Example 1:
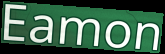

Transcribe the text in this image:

Eamon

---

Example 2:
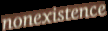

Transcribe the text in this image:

nonexistence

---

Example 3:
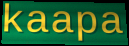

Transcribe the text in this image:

kaapa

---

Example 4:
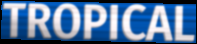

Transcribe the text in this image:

TROPICAL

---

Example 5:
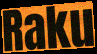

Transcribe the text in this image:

Raku